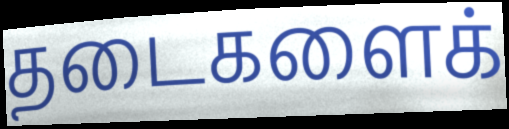
தடைகளைக்